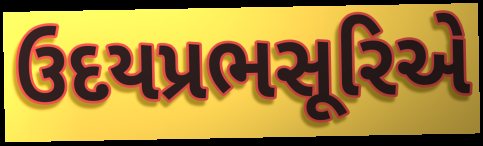
ઉદયપ્રભસૂરિએ